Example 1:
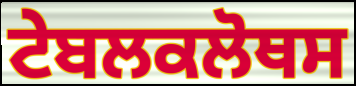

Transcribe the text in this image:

ਟੇਬਲਕਲੋਥਸ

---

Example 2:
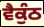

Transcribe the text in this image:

ਵੈਕੁੰਠ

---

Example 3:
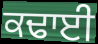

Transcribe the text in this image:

ਕਢਾਈ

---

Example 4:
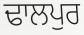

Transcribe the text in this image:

ਢਾਲਪੁਰ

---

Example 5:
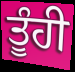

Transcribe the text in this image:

ਤੂੰਹੀ